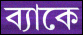
ব্যাকে